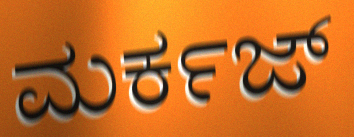
ಮರ್ಕಜ್